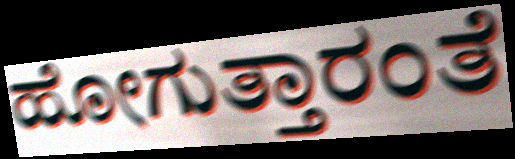
ಹೋಗುತ್ತಾರಂತೆ